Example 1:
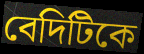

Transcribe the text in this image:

বেদিটিকে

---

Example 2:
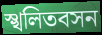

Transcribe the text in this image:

স্খলিতবসন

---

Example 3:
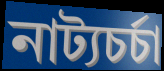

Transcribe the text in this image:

নাট্যচর্চা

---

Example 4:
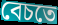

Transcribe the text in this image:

বেচতে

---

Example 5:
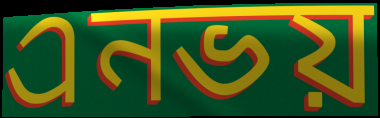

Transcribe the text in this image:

এনভয়